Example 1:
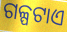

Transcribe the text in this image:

ଗଳ୍ପଟାଏ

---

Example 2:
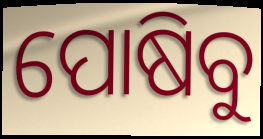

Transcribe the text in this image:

ପୋଷିବୁ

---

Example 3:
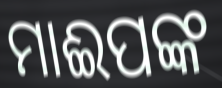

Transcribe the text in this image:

ମାଈପଙ୍କ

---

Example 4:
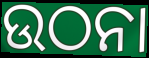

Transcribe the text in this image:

ଉଠନା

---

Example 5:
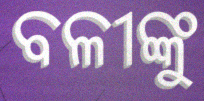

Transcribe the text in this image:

ବଳୀଙ୍କୁ